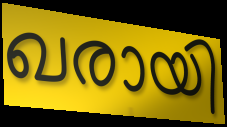
ഖരായി